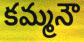
కమ్మనౌ